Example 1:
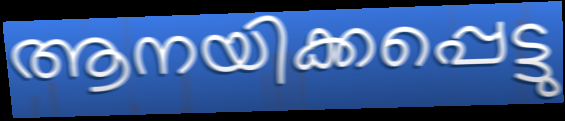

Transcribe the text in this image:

ആനയിക്കപ്പെട്ടു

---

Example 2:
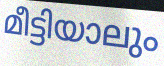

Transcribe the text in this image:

മീട്ടിയാലും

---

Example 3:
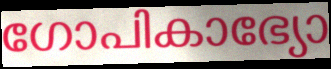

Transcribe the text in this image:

ഗോപികാഭ്യോ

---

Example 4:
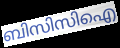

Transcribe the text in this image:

ബിസിസിഐ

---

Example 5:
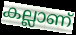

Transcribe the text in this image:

കല്ലാണ്